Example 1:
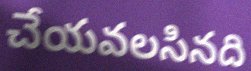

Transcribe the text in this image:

చేయవలసినది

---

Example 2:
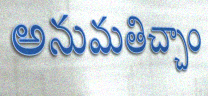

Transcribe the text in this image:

అనుమతిచ్చాం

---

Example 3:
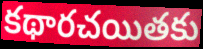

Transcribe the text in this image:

కథారచయితకు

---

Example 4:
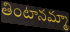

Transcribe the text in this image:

తింటానమ్మా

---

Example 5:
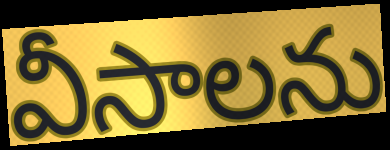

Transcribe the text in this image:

వీసాలను